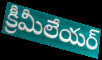
క్రీమీలేయర్